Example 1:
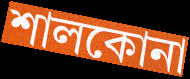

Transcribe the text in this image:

শালকোনা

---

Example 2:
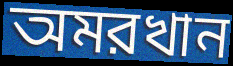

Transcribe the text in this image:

অমরখান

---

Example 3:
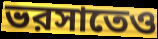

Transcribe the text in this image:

ভরসাতেও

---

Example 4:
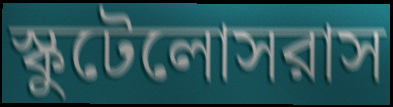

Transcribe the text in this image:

স্কুটেলোসরাস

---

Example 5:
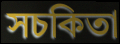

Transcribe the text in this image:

সচকিতা